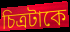
চিত্রটাকে